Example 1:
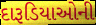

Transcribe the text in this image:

દારૂડિયાઓની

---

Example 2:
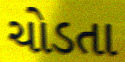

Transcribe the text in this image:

ચોડતા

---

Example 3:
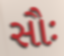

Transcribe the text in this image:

સૌઃ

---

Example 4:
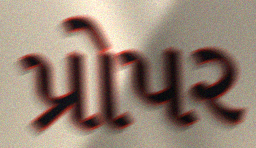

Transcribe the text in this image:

પ્રોપર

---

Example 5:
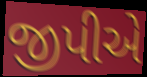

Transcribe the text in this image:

જીપીએ